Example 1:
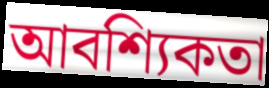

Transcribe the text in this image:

আবশ্যিকতা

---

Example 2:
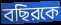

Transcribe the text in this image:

বছিরকে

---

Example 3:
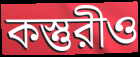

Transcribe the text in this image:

কস্তুরীও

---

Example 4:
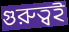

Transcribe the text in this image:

গুরুত্বই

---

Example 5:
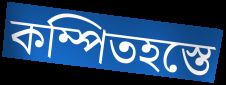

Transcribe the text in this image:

কম্পিতহস্তে